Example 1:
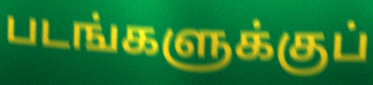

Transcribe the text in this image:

படங்களுக்குப்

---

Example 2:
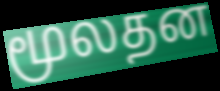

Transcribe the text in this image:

மூலதன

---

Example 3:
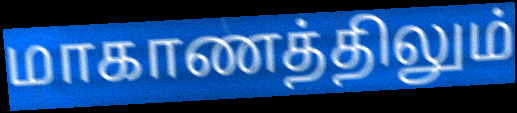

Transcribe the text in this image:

மாகாணத்திலும்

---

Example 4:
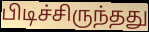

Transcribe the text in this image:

பிடிச்சிருந்தது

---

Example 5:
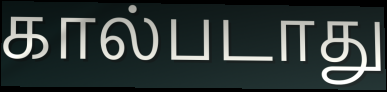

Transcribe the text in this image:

கால்படாது